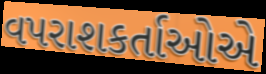
વપરાશકર્તાઓએ